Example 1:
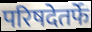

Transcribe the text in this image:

परिषदेतर्फे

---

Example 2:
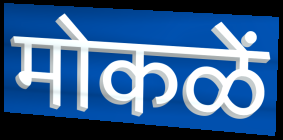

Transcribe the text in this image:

मोकळें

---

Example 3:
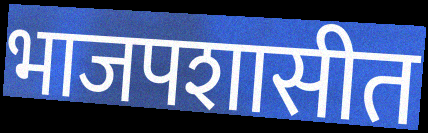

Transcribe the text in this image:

भाजपशासीत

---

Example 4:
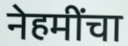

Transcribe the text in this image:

नेहमींचा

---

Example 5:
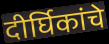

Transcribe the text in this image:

दीर्घिकांचे